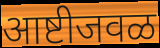
आष्टीजवळ